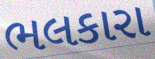
ભલકારા